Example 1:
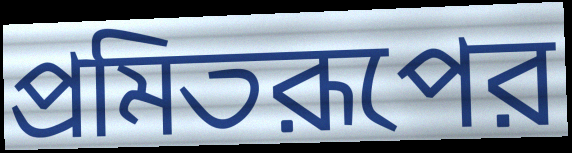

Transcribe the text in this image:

প্রমিতরূপের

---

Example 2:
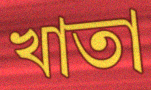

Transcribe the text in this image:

খাতা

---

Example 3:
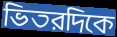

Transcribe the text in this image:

ভিতরদিকে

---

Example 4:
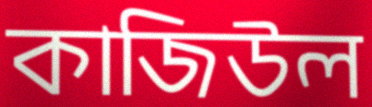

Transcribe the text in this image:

কাজিউল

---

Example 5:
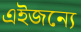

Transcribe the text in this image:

এইজন্যে